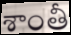
శాంతీ